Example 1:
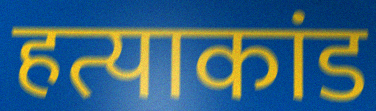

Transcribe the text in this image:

हत्याकांड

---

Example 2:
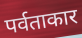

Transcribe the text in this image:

पर्वताकार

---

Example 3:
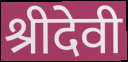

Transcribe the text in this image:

श्रीदेवी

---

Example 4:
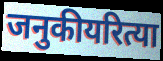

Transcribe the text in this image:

जनुकीयरित्या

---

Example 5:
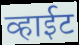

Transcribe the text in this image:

व्हाईट